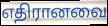
எதிரானவை